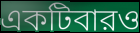
একটিবারও